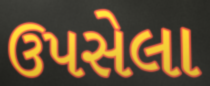
ઉપસેલા